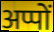
अप्पों